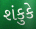
શંકુકે